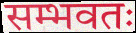
सम्भवतः